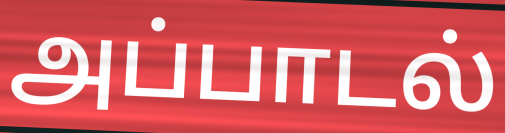
அப்பாடல்